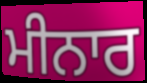
ਮੀਨਾਰ